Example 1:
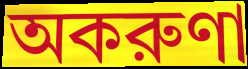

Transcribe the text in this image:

অকরুণা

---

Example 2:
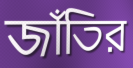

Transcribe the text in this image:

জাঁতির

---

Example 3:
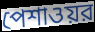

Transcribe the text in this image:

পেশাওয়র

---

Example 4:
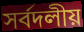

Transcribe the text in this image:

সর্বদলীয়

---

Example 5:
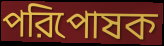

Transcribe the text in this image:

পরিপোষক